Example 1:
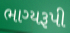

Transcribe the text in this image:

ભાગ્યરૂપી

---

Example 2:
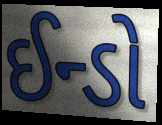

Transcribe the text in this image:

ઈન્ડો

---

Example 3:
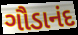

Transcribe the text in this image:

ગૌડાનંદ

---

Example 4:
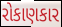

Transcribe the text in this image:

રોકાણકાર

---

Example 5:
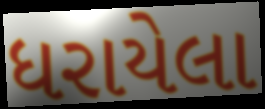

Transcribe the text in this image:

ધરાયેલા